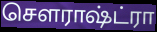
சௌராஷ்ட்ரா